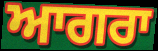
ਆਗਰਾ